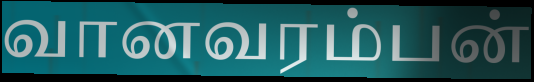
வானவரம்பன்